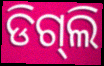
ଡିଗ୍‌ଲି